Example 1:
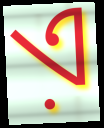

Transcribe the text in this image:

ଏ଼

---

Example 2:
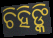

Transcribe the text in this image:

ଚିହିଙ୍କି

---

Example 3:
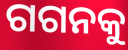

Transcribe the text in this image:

ଗଗନକୁ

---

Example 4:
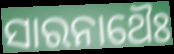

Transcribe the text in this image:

ସାରନାଥୈଃ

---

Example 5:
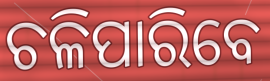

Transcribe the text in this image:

ଚଳିପାରିବେ